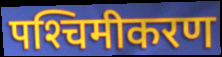
पश्चिमीकरण